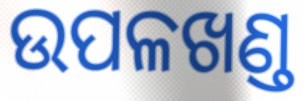
ଉପଳଖଣ୍ଡ